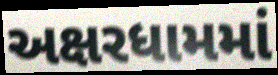
અક્ષરધામમાં